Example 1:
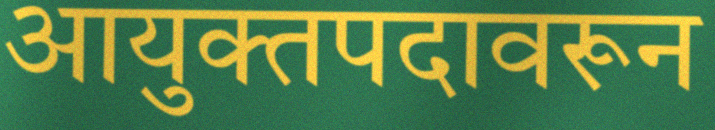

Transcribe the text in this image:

आयुक्तपदावरून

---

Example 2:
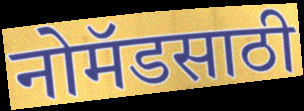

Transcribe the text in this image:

नोमॅडसाठी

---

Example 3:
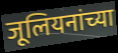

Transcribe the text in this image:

जूलियनांच्या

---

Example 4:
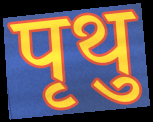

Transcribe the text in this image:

पृथु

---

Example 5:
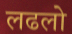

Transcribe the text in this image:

लढलो